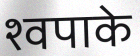
श्वपाके